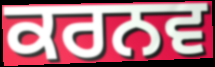
ਕਰਨਵ